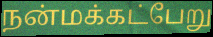
நன்மக்கட்பேறு